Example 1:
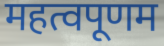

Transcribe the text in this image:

महत्वपूणम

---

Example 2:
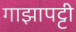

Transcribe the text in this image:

गाझापट्टी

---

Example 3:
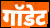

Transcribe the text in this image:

गॉडेट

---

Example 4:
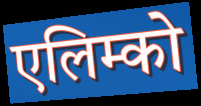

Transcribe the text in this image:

एलिम्को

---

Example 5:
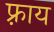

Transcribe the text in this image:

फ़्राय